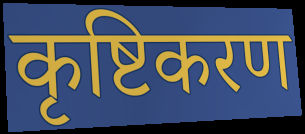
कृष्टिकरण